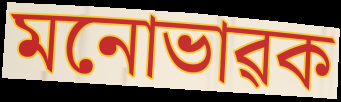
মনোভাৱক